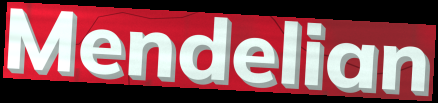
Mendelian